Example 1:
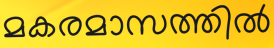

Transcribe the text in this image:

മകരമാസത്തിൽ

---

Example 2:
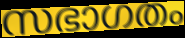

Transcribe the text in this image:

സഭാഗതം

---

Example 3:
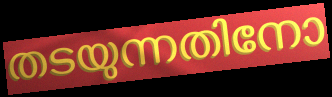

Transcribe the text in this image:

തടയുന്നതിനോ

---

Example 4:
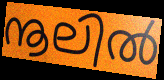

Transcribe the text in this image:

നൂലിൽ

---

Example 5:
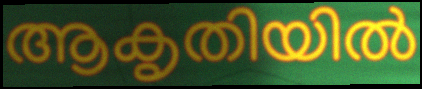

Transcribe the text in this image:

ആകൃതിയിൽ